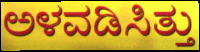
ಅಳವಡಿಸಿತ್ತು